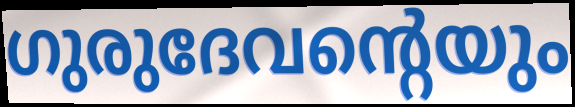
ഗുരുദേവന്റെയും